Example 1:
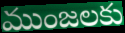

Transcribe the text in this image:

ముంజలకు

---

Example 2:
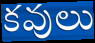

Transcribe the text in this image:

కవులు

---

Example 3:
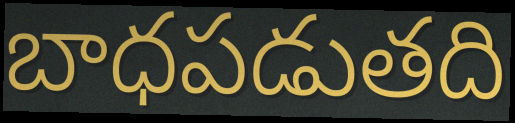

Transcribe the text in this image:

బాధపడుతది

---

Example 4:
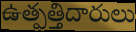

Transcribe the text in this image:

ఉత్పత్తిదారులు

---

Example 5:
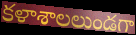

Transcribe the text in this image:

కళాశాలలుండగా